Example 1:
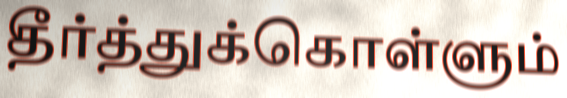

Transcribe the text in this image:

தீர்த்துக்கொள்ளும்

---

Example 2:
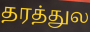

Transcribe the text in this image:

தரத்துல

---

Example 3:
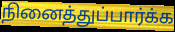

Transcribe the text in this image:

நினைத்துப்பார்க்க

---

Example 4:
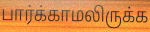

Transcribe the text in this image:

பார்க்காமலிருக்க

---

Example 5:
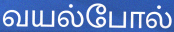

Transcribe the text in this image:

வயல்போல்